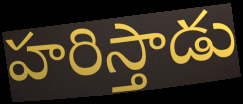
హరిస్తాడు